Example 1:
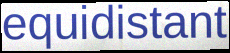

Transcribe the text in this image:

equidistant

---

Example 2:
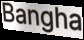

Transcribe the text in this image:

Bangha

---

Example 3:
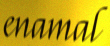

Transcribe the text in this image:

enamal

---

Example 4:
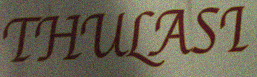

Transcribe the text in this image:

THULASI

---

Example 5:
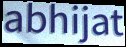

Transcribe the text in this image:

abhijat